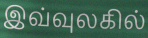
இவ்வுலகில்